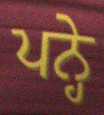
ਪਨ੍ਹੇ